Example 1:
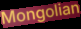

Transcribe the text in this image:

Mongolian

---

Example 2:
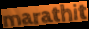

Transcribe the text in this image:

marathit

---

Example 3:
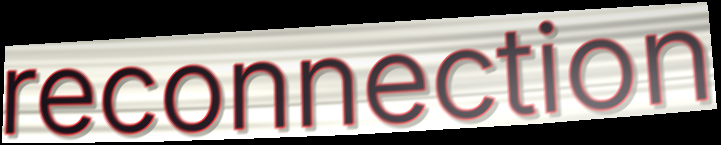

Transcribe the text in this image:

reconnection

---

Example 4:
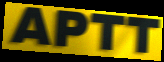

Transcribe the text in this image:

APTT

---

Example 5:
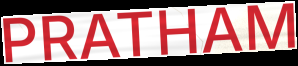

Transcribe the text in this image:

PRATHAM